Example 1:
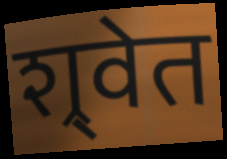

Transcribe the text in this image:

श्र्वेत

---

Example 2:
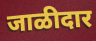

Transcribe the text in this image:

जाळीदार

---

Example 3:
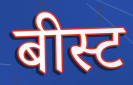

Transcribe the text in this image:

बीस्ट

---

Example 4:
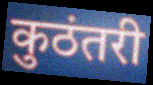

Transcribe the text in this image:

कुठंतरी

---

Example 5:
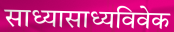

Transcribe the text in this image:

साध्यासाध्यविवेक